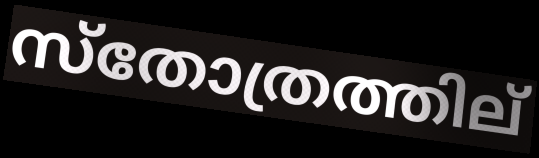
സ്തോത്രത്തില്